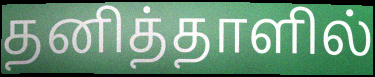
தனித்தாளில்